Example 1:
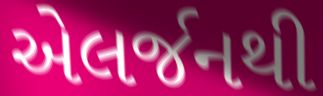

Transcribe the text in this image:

એલર્જનથી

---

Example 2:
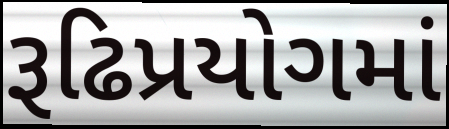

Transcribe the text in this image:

રૂઢિપ્રયોગમાં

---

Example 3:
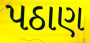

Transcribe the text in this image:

પઠાણ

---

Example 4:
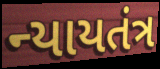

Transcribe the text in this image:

ન્યાયતંત્ર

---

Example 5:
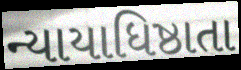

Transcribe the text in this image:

ન્યાયાધિષ્ઠાતા